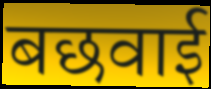
बछवाई